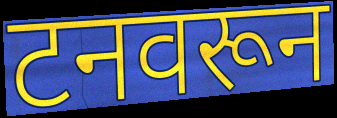
टनवरून